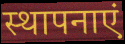
स्थापनाएं